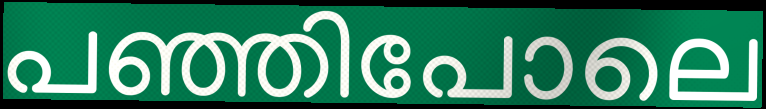
പഞ്ഞിപോലെ